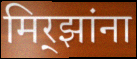
मिर्झांना